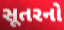
સૂતરનો